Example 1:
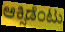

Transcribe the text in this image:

ಆಕ್ಸಿಡೆಂಟು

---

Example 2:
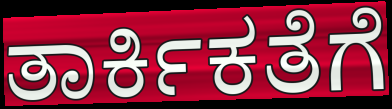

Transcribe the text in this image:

ತಾರ್ಕಿಕತೆಗೆ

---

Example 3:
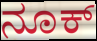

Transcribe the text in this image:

ನೂಕ್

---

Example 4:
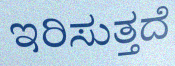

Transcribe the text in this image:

ಇರಿಸುತ್ತದೆ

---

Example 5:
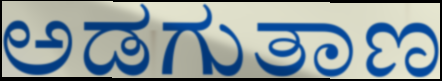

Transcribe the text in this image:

ಅಡಗುತಾಣ